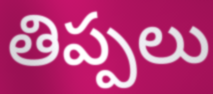
తిప్పలు